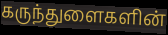
கருந்துளைகளின்